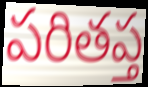
పరితప్త